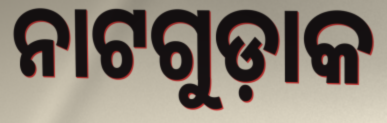
ନାଟଗୁଡ଼ାକ